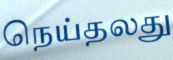
நெய்தலது